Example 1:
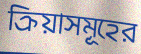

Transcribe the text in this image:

ক্রিয়াসমূহের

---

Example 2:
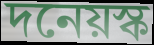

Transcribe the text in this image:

দনেয়স্ক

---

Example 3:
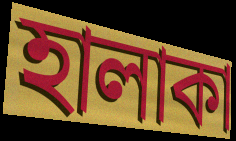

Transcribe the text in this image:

হালাকা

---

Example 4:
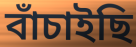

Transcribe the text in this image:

বাঁচাইছি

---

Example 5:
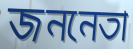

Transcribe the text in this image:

জননেতা